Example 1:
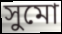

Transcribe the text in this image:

সুমো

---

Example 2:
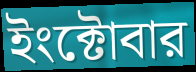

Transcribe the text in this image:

ইংক্টোবার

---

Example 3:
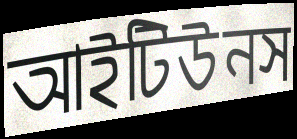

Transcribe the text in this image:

আইটিউনস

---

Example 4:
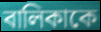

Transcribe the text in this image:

বালিকাকে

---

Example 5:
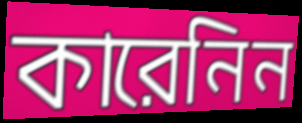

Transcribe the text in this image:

কারেনিন